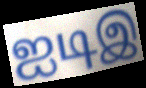
ஐடிஇ